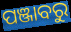
ପଞ୍ଜାବରୁ